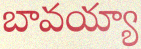
బావయ్యా